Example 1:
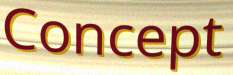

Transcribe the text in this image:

Concept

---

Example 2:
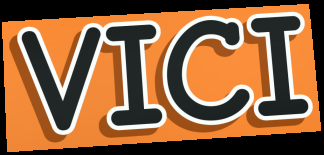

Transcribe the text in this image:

VICI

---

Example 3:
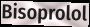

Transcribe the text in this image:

Bisoprolol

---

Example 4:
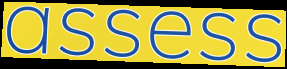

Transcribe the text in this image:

assess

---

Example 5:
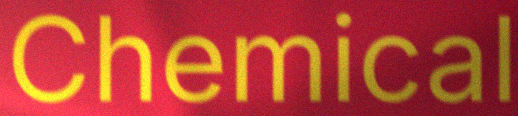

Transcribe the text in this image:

Chemical